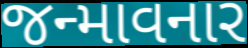
જન્માવનાર